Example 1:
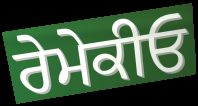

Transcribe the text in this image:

ਰੇਮੇਕੀਓ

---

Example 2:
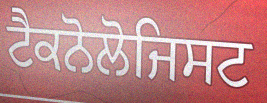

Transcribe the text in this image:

ਟੈਕਨੋਲੋਜਿਸਟ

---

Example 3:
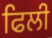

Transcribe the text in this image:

ਫਿਲੀ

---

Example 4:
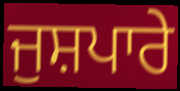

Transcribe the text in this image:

ਜੁਸ਼ਪਾਰੇ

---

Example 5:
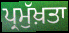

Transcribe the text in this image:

ਪ੍ਰਮੁੱਖ਼ਤਾ